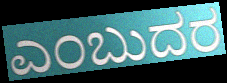
ಎಂಬುದರ